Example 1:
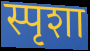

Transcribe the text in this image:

स्पृशा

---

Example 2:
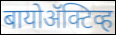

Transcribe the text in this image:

बायोॲक्टिव्ह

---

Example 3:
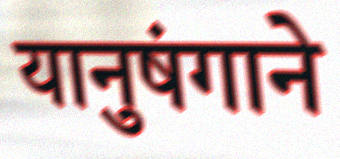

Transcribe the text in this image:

यानुषंगाने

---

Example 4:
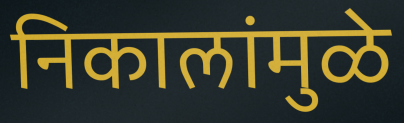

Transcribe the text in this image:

निकालांमुळे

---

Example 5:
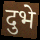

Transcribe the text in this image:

दुभे